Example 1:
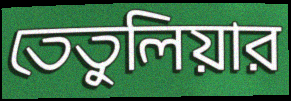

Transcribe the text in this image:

তেতুলিয়ার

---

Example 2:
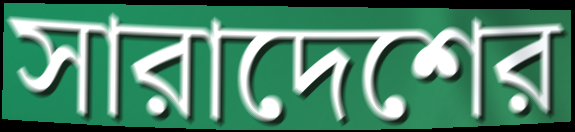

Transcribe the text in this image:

সারাদেশের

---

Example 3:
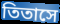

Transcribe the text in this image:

তিতাসে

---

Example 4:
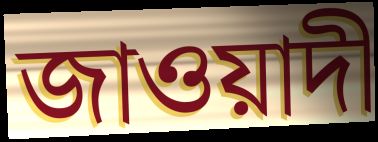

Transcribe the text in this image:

জাওয়াদী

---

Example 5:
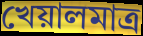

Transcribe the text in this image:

খেয়ালমাত্র